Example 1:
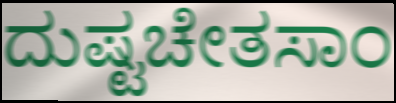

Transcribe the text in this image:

ದುಷ್ಟಚೇತಸಾಂ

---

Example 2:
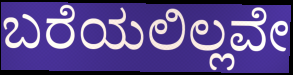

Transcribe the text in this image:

ಬರೆಯಲಿಲ್ಲವೇ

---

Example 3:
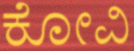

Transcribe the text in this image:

ಕೋವಿ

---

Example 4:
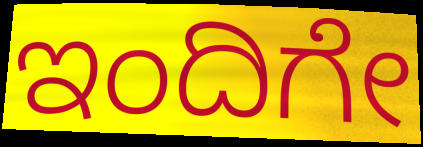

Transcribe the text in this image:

ಇಂದಿಗೇ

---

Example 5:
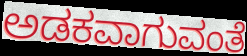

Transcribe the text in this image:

ಅಡಕವಾಗುವಂತೆ